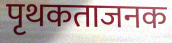
पृथकताजनक